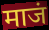
माजं